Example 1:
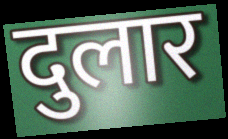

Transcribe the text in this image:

दुलार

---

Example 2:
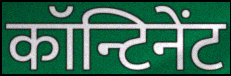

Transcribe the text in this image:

कॉन्टिनेंट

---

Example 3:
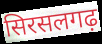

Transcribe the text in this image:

सिरसलगढ़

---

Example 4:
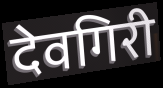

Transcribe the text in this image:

देवगिरी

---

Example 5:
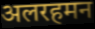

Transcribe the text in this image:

अलरहमन